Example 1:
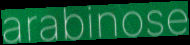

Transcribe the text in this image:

arabinose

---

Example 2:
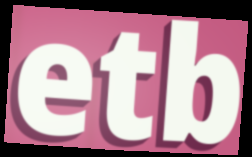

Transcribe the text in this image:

etb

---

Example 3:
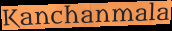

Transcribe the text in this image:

Kanchanmala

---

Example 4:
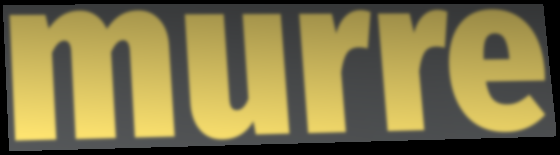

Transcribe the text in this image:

murre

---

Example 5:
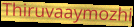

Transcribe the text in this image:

Thiruvaaymozhi